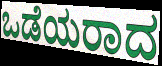
ಒಡೆಯರಾದ